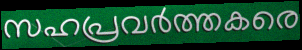
സഹപ്രവർത്തകരെ